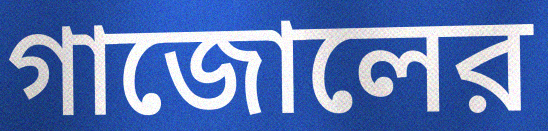
গাজোলের